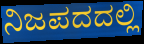
ನಿಜಪದದಲ್ಲಿ